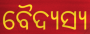
ବୈଦ୍ୟସ୍ୟ